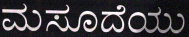
ಮಸೂದೆಯು